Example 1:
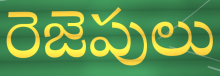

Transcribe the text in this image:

రెజెపులు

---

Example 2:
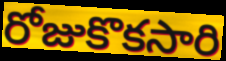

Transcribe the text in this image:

రోజుకొకసారి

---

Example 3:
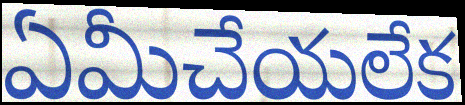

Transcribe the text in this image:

ఏమీచేయలేక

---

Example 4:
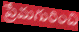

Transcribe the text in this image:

ప్రేమగురించి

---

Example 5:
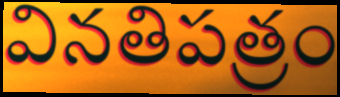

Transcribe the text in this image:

వినతిపత్రం